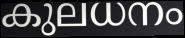
കുലധനം